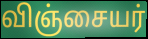
விஞ்சையர்